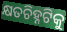
କ୍ଷତଚିହ୍ନଟିକୁ